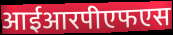
आईआरपीएफएस